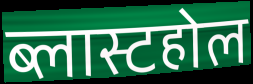
ब्लास्टहोल